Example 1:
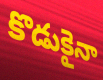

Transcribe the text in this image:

కొడుకైనా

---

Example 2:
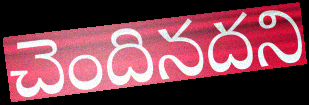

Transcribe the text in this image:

చెందినదని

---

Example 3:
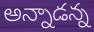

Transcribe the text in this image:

అన్నాడన్న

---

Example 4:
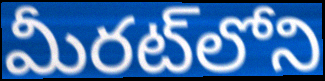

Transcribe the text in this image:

మీరట్‌లోని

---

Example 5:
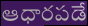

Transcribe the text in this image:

ఆధారపడే